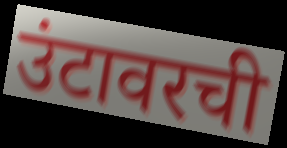
उंटावरची